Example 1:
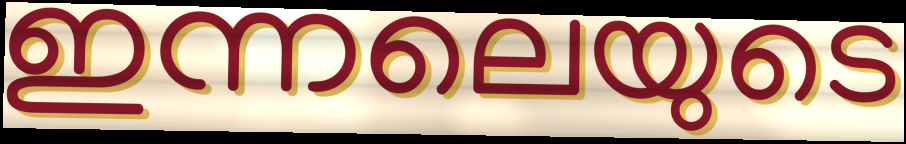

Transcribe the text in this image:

ഇന്നലെയുടെ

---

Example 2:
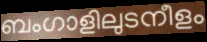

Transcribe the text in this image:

ബംഗാളിലുടനീളം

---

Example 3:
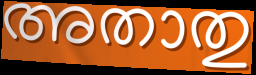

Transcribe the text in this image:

അതാതു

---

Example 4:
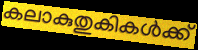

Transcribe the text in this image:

കലാകുതുകികൾക്ക്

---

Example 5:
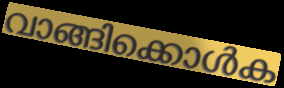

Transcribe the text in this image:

വാങ്ങിക്കൊൾക